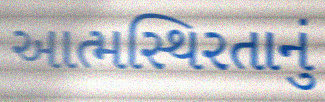
આત્મસ્થિરતાનું